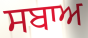
ਸਬਾਅ